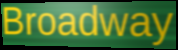
Broadway